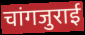
चांगजुराई